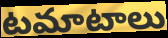
టమాటాలు